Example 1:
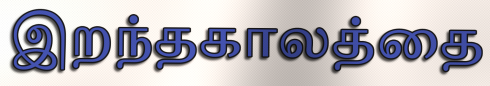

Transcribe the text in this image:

இறந்தகாலத்தை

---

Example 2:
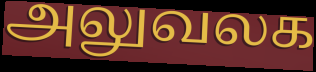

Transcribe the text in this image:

அலுவலக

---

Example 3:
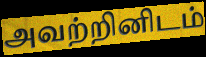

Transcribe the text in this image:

அவற்றினிடம்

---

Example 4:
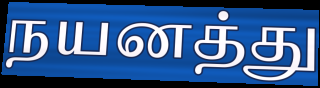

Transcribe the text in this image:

நயனத்து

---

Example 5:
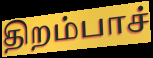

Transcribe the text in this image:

திறம்பாச்